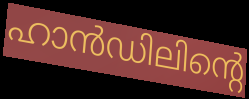
ഹാൻഡിലിന്റെ